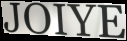
JOIYE